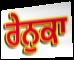
ਰੇਨੁਕਾ